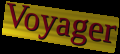
Voyager